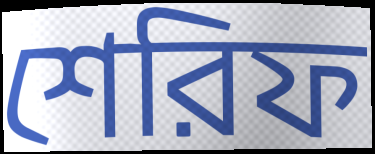
শেরিফ